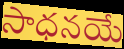
సాధనయే